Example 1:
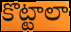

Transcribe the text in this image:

కొట్టాలా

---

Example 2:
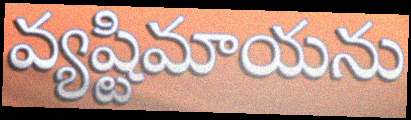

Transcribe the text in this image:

వ్యష్టిమాయను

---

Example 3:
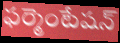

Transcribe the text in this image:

ఫర్మెంటేషన్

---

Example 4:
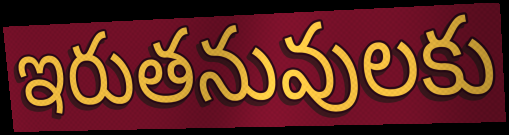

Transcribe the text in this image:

ఇరుతనువులకు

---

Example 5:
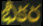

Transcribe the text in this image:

భీకర